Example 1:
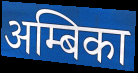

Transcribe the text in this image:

अम्बिका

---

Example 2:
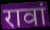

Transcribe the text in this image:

रावां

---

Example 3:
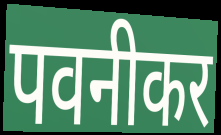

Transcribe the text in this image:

पवनीकर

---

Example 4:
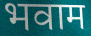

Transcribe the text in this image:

भवाम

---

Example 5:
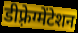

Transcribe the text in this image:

डीफ़्रेग्मेंटेशन